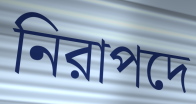
নিরাপদে